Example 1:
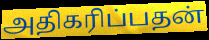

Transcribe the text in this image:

அதிகரிப்பதன்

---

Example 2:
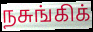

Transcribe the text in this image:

நசுங்கிக்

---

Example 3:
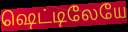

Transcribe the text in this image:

ஷெட்டிலேயே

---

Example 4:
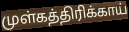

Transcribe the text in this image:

முள்கத்திரிக்காய்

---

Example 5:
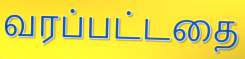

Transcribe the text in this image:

வரப்பட்டதை